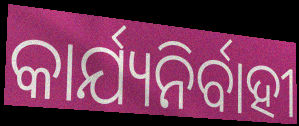
କାର୍ଯ୍ୟନିର୍ବାହୀ